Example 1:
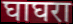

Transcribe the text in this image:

घाघरा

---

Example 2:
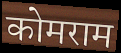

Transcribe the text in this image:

कोमराम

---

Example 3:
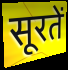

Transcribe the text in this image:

सूरतें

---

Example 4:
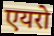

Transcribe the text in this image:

एयरो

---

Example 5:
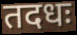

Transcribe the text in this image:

तदधः